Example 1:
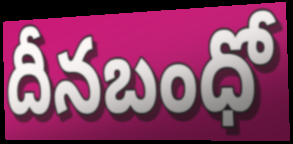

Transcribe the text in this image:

దీనబంధో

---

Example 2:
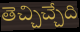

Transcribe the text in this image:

తెచ్చిచ్చేది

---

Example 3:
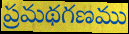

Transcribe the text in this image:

ప్రమథగణము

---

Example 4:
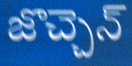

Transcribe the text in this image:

జొచ్చెన్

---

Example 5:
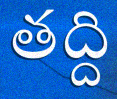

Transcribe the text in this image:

తద్ది